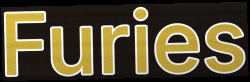
Furies